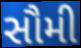
સૌમી